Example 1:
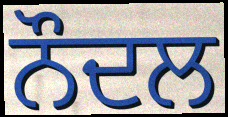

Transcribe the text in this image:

ਨੌਦਲ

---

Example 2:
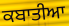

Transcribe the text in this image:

ਕਬਾਤੀਆ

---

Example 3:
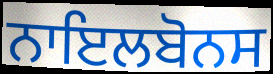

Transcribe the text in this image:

ਨਾਇਲਬੋਨਸ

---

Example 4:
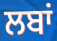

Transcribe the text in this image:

ਲਬਾਂ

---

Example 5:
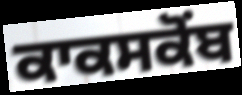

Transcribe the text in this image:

ਕਾਕਸਕੋਂਬ